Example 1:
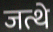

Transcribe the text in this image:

जत्थे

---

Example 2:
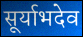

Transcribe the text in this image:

सूर्याभदेव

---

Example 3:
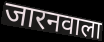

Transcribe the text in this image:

जारनवाला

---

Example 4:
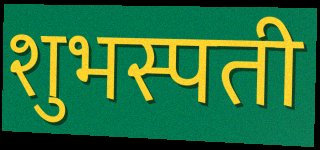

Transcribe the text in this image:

शुभस्पती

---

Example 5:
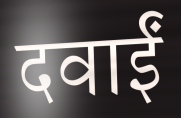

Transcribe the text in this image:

दवाईं